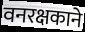
वनरक्षकाने